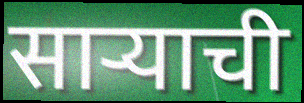
सार्‍याची